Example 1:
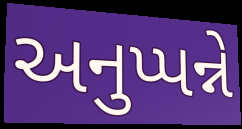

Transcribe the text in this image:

અનુપ્પન્ને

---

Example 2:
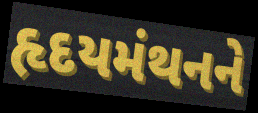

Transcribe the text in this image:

હૃદયમંથનને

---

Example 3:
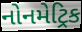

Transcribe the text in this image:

નોનમેટ્રિક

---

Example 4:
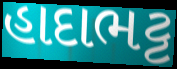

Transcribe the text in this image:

હાદાભટ્ટ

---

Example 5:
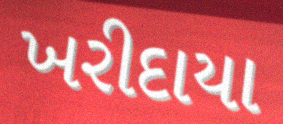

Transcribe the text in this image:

ખરીદાયા